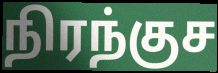
நிரந்குச